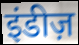
इंडीज़